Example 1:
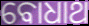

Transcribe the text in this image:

ବୋଧାଥ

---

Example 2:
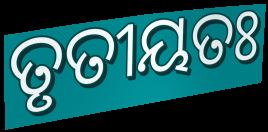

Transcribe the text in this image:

ତୃତୀୟତଃ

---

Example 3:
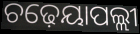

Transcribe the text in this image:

ଚଢ଼େୟାପଲ୍ଲୀ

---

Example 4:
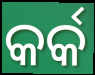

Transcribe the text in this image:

କର୍କ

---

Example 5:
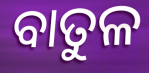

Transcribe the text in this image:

ବାତୁଳ